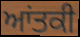
ਆਂਤਕੀ